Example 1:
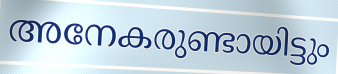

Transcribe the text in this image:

അനേകരുണ്ടായിട്ടും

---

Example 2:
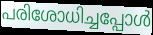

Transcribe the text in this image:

പരിശോധിച്ചപ്പോൾ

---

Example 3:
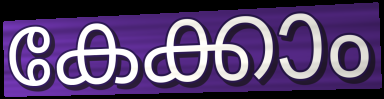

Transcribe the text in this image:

കേക്കാം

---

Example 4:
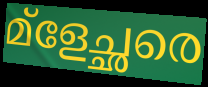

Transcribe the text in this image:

മ്ളേച്ഛരെ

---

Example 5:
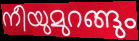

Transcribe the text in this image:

നീയുമുറങ്ങും